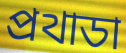
প্রথাডা